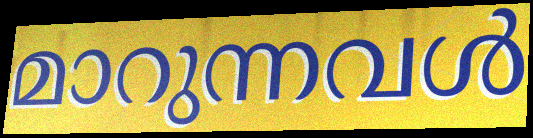
മാറുന്നവൾ